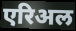
एरिअल